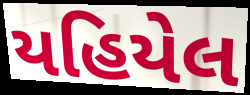
યહિયેલ